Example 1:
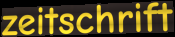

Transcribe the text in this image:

zeitschrift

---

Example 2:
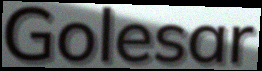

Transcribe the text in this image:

Golesar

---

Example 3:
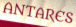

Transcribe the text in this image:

ANTARES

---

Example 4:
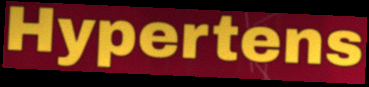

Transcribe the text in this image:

Hypertens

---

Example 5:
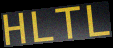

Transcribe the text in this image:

HLTL